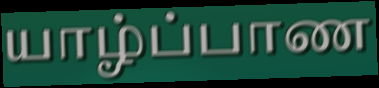
யாழ்ப்பாண